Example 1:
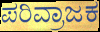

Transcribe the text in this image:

ಪರಿವ್ರಾಜಕ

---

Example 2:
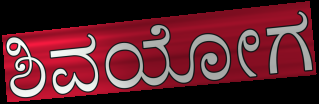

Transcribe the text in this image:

ಶಿವಯೋಗ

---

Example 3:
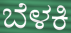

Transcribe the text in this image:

ಬೆಳಕಿ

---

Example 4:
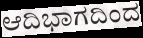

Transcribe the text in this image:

ಆದಿಭಾಗದಿಂದ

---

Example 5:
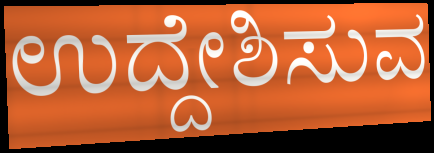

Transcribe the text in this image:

ಉದ್ದೇಶಿಸುವ